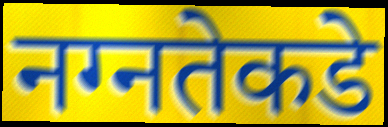
नग्नतेकडे